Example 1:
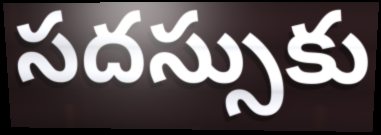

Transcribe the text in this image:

సదస్సుకు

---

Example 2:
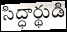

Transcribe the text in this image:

సిద్ధార్థుడి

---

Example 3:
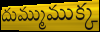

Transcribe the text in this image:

దుమ్ముముక్క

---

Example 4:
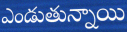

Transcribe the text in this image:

ఎండుతున్నాయి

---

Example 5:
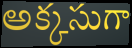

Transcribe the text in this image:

అక్కసుగా